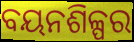
ବୟନଶିଳ୍ପର